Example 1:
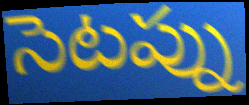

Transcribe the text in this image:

సెటప్ను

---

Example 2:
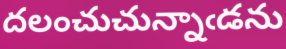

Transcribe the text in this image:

దలంచుచున్నాఁడను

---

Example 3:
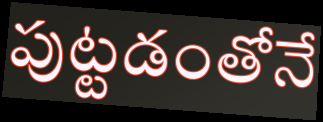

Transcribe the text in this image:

పుట్టడంతోనే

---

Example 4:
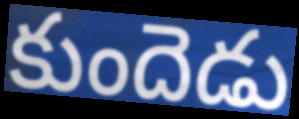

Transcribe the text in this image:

కుందెడు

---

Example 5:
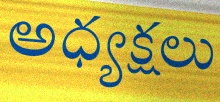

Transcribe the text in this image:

అధ్యక్షలు